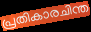
പ്രതികാരചിന്ത